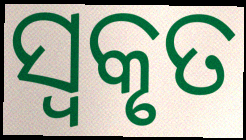
ସ୍ୱକୃତ